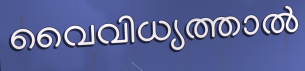
വൈവിധ്യത്താൽ